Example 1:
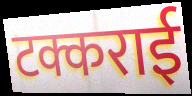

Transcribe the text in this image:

टक्कराई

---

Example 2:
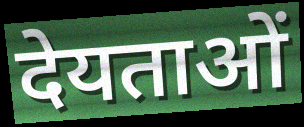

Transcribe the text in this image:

देयताओं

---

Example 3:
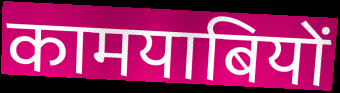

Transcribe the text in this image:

कामयाबियों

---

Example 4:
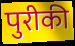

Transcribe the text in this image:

पुरीकी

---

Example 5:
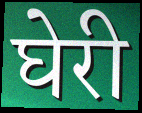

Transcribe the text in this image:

घेरी